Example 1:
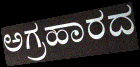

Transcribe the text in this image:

ಅಗ್ರಹಾರದ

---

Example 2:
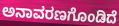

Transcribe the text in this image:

ಅನಾವರಣಗೊಂಡಿದೆ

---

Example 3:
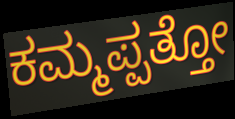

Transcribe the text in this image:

ಕಮ್ಮಪ್ಪತ್ತೋ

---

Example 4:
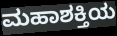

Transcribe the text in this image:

ಮಹಾಶಕ್ತಿಯ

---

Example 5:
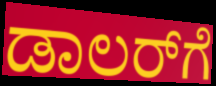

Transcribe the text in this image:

ಡಾಲರ್‌ಗೆ